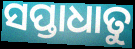
ସପ୍ତାଧାତୁ